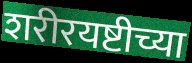
शरीरयष्टीच्या